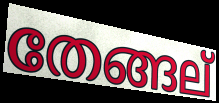
തേങ്ങല്